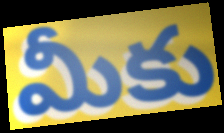
మీకు